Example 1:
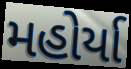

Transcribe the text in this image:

મહોર્યા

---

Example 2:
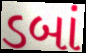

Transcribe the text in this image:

ડબાં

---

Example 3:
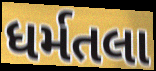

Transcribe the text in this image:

ધર્મતલા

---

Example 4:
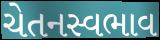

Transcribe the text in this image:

ચેતનસ્વભાવ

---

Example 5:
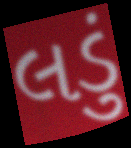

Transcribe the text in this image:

લડું